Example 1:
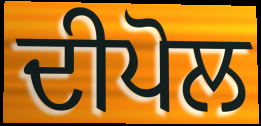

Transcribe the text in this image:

ਦੀਪੋਲ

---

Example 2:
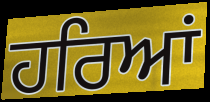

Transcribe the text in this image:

ਹਰਿਆਂ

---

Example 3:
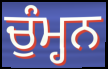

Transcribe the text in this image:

ਚੁੰਮ੍ਹਨ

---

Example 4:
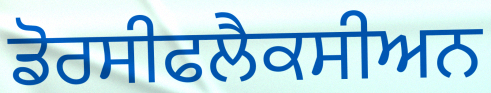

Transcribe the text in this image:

ਡੋਰਸੀਫਲੈਕਸੀਅਨ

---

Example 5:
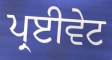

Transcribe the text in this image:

ਪ੍ਰਈਵੇਟ